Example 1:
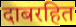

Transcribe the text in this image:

दाबरहित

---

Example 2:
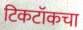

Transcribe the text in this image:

टिकटॉकचा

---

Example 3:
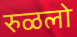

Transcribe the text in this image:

रुळलो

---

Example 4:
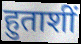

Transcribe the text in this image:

हुताशीं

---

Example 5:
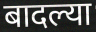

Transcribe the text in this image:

बादल्या